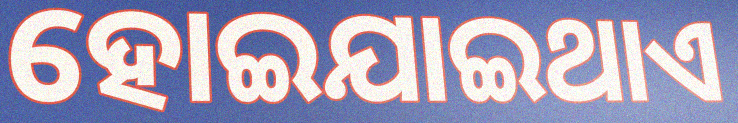
ହୋଇଯାଇଥାଏ